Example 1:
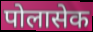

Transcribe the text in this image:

पोलासेक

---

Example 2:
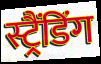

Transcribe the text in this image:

स्ट्रैंडिंग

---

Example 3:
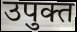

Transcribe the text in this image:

उपुक्त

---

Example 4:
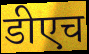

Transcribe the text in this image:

डीएच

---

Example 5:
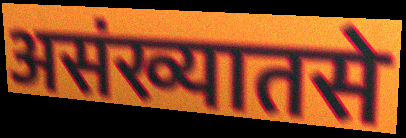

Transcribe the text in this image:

असंख्यातसे